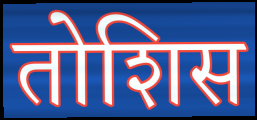
तोशिस